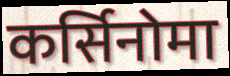
कर्सिनोमा